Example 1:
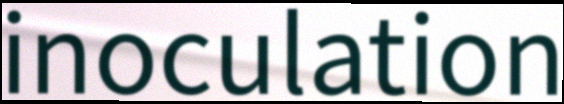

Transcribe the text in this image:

inoculation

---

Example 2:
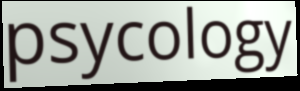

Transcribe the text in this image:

psycology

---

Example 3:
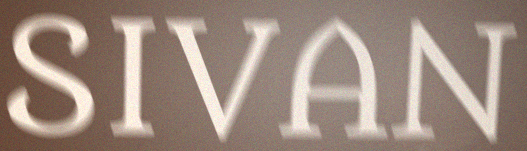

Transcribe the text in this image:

SIVAN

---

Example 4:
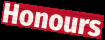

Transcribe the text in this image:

Honours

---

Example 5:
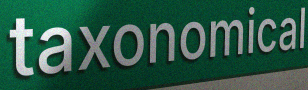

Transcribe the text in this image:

taxonomical